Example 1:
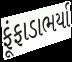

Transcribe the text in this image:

ફૂંફાડાભર્યા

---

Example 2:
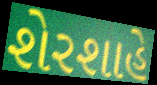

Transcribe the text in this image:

શેરશાહે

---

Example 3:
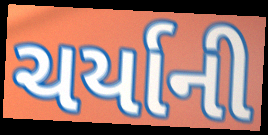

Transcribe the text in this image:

ચર્યાની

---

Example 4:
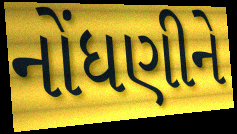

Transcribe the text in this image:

નોંધણીને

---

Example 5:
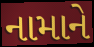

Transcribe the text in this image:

નામાને